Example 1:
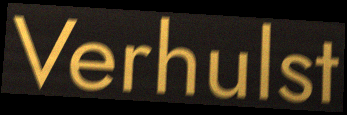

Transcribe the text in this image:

Verhulst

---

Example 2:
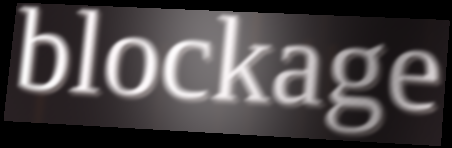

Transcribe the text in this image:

blockage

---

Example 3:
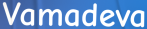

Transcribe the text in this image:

Vamadeva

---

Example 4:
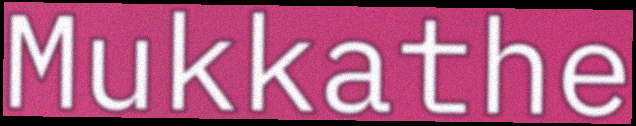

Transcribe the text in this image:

Mukkathe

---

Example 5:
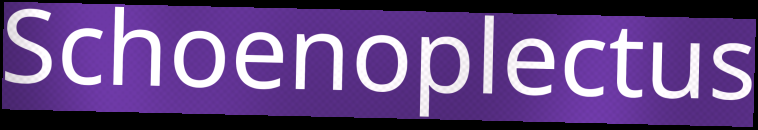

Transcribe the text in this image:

Schoenoplectus